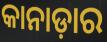
କାନାଡ଼ାର